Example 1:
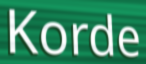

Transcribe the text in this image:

Korde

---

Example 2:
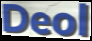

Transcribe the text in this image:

Deol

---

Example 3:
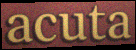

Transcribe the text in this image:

acuta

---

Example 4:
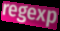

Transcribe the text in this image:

regexp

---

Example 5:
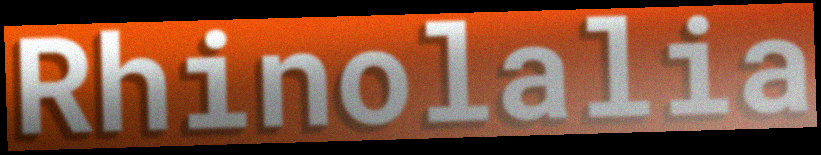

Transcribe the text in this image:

Rhinolalia